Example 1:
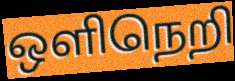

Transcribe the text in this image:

ஒளிநெறி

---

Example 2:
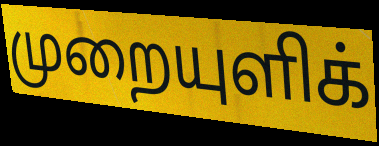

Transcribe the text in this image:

முறையுளிக்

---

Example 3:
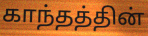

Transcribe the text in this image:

காந்தத்தின்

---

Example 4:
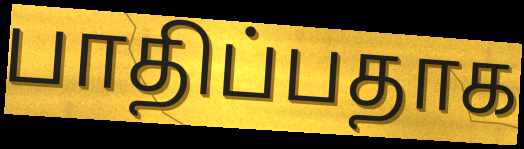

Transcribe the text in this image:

பாதிப்பதாக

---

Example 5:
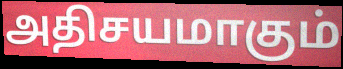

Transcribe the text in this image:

அதிசயமாகும்